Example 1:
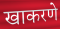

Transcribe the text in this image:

खाकरणे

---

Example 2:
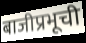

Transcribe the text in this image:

बाजीप्रभूची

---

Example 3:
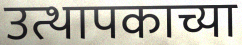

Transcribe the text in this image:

उत्थापकाच्या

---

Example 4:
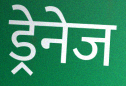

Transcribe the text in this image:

ड्रेनेज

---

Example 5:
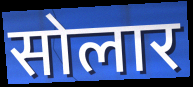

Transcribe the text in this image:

सोलार